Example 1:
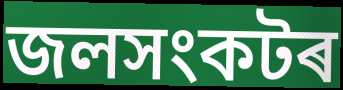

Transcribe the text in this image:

জলসংকটৰ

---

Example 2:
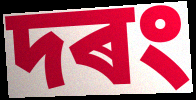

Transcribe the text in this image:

দৰং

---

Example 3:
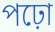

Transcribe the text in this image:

পঢ়ো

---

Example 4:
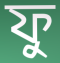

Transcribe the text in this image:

ফু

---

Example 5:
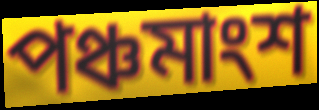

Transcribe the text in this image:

পঞ্চমাংশ